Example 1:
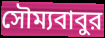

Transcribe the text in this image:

সৌম্যবাবুর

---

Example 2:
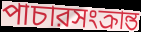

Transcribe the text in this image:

পাচারসংক্রান্ত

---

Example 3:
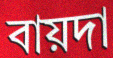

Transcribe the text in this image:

বায়দা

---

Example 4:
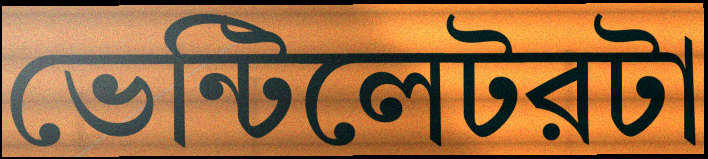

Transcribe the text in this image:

ভেন্টিলেটরটা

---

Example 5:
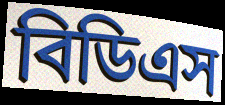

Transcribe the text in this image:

বিডিএস